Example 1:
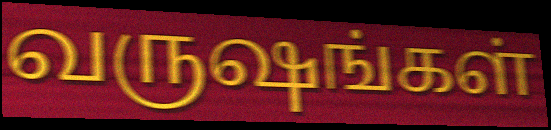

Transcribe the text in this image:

வருஷங்கள்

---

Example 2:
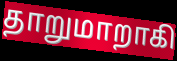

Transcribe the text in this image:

தாறுமாறாகி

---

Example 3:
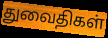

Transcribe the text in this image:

துவைதிகள்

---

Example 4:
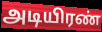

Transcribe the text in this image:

அடியிரண்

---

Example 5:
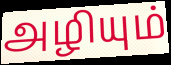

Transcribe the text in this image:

அழியும்